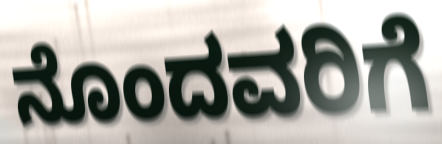
ನೊಂದವರಿಗೆ